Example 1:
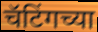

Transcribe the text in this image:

चॅटिंगच्या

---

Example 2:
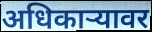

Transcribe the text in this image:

अधिकार्‍यावर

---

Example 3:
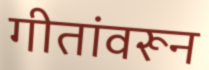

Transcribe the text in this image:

गीतांवरून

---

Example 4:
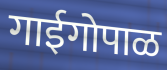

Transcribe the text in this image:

गाईगोपाळ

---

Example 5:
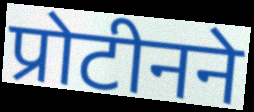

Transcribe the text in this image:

प्रोटीनने